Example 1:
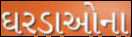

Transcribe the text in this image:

ઘરડાઓના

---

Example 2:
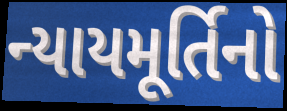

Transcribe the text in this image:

ન્યાયમૂર્તિનો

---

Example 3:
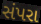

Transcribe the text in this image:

સંપરા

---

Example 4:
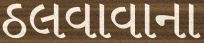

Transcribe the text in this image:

ઠલવાવાના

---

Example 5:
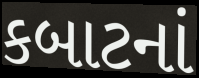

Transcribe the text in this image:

કબાટનાં